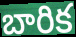
బారిక